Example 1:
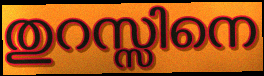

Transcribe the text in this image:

തുറസ്സിനെ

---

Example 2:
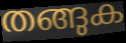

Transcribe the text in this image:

തങ്ങുക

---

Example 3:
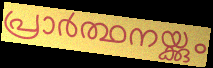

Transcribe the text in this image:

പ്രാർത്ഥനയ്ക്കും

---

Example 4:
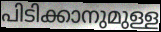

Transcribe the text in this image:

പിടിക്കാനുമുള്ള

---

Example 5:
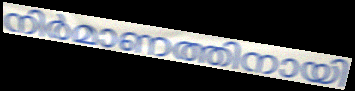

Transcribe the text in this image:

നിർമാണത്തിനായി